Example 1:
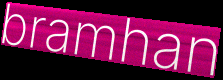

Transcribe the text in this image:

bramhan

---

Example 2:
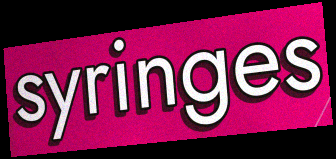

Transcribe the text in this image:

syringes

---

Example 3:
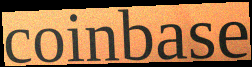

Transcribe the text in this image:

coinbase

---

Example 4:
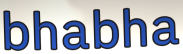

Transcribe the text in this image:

bhabha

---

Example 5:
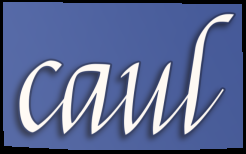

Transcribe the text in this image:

caul